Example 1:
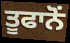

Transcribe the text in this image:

ਤੂਫਾਨੋਂ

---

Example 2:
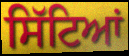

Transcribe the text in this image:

ਸਿੱਟਿਆਂ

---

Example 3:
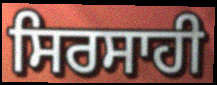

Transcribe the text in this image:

ਸਿਰਸਾਹੀ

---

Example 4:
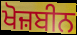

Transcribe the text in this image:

ਖੋਜ਼ਬੀਨ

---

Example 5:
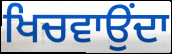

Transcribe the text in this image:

ਖਿਚਵਾਉਂਦਾ